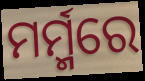
ମର୍ମ୍ମରେ